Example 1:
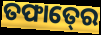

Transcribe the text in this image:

ତଫାତ୍‍ରେ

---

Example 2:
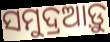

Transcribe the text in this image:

ସମୁଦ୍ରଆଡ଼ୁ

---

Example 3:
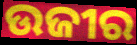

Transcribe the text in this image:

ଉଜୀର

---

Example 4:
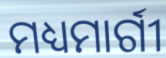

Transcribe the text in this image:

ମଧ୍ୟମାର୍ଗୀ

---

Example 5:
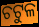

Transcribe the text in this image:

ଚଟୁଳ